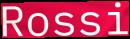
Rossi